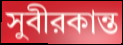
সুবীরকান্ত